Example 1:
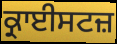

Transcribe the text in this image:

ਕ੍ਰਾਈਸਟਜ਼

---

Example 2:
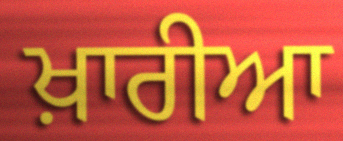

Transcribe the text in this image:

ਖ਼ਾਰੀਆ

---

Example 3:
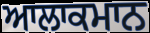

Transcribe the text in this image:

ਆਲਾਕਮਾਨ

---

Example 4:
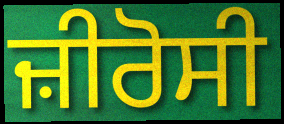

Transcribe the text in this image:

ਜ਼ੀਰੋਸੀ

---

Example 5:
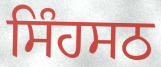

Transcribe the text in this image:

ਸਿੰਹਸਠ